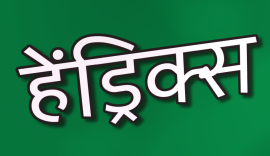
हेंड्रिक्स